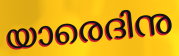
യാരെദിനു